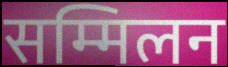
सम्मिलन